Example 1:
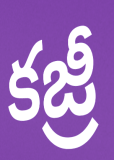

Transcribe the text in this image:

కజ్రీ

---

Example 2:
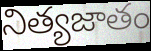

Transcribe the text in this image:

నిత్యజాతం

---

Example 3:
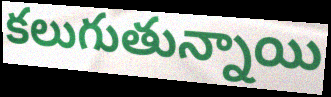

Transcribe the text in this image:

కలుగుతున్నాయి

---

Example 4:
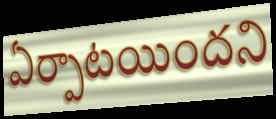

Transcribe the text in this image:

ఏర్పాటయిందని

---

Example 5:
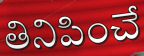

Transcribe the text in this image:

తినిపించే